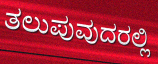
ತಲುಪುವುದರಲ್ಲಿ